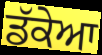
ਡੱਕੇਆ